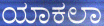
ಯಾಕಲಾ